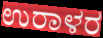
ಉರಾಳರ